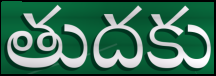
తుదకు